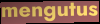
mengutus